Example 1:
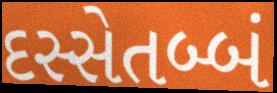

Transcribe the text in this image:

દસ્સેતબ્બં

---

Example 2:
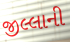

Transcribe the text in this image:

જીલ્લાની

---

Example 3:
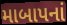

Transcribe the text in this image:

માબાપનાં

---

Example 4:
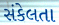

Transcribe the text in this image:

સંકેલતા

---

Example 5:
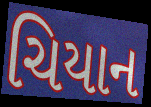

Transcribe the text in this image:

ચિયાન